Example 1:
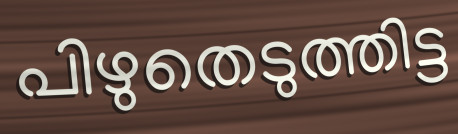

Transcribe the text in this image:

പിഴുതെടുത്തിട്ട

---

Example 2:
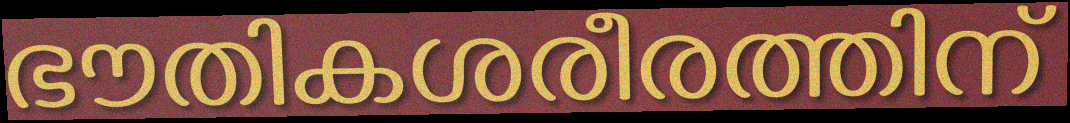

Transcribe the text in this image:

ഭൗതികശരീരത്തിന്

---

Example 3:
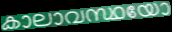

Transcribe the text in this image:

കാലാവസ്ഥയോ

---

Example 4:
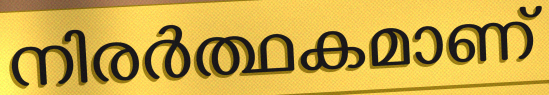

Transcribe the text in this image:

നിരർത്ഥകമാണ്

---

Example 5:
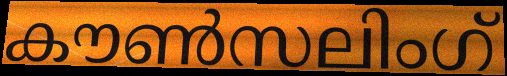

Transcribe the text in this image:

കൗൺസലിംഗ്